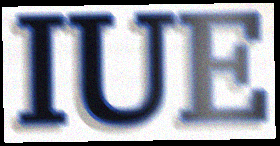
IUE